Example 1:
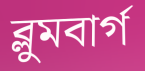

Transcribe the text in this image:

ব্লুমবার্গ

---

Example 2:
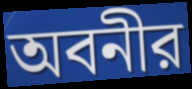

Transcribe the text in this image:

অবনীর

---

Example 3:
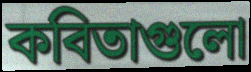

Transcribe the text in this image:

কবিতাগুলো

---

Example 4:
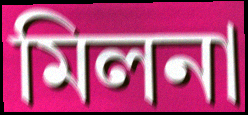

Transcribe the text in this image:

মিলনা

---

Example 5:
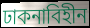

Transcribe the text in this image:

ঢাকনাবিহীন